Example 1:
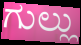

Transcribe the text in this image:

ಗುಲ್ಲು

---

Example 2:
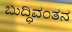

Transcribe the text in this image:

ಬುದ್ಧಿವಂತನ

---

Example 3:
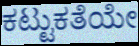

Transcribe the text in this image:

ಕಟ್ಟುಕತೆಯೇ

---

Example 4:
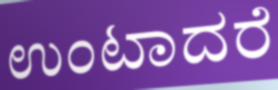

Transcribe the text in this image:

ಉಂಟಾದರೆ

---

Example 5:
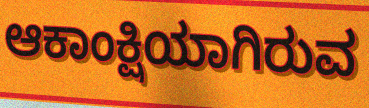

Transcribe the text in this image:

ಆಕಾಂಕ್ಷಿಯಾಗಿರುವ